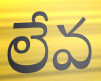
లేవ